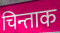
चिन्ताक